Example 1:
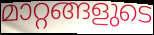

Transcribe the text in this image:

മാറ്റങ്ങളുടെ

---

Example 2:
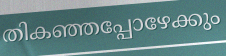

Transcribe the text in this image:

തികഞ്ഞപ്പോഴേക്കും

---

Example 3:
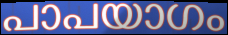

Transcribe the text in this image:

പാപയാഗം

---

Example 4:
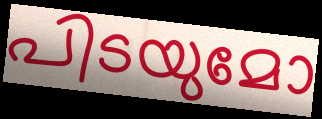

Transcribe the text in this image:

പിടയുമോ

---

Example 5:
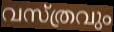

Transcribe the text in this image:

വസ്ത്രവും